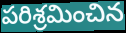
పరిశ్రమించిన